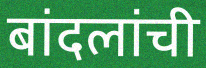
बांदलांची